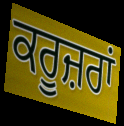
ਕਰੂਜ਼ਰਾਂ